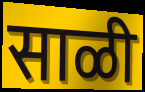
साळी